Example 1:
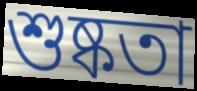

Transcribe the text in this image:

শুষ্কতা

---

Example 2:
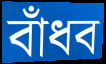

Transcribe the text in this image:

বাঁধব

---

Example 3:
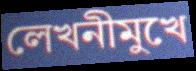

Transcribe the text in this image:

লেখনীমুখে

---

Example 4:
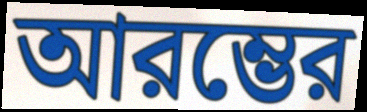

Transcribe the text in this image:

আরম্ভের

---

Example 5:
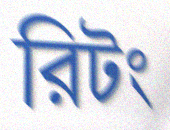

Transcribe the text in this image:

রিটং